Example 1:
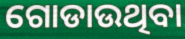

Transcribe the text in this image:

ଗୋଡାଉଥିବା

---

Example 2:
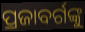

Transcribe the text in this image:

ପ୍ରଜାବର୍ଗଙ୍କୁ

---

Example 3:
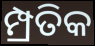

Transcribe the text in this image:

ମ୍ପ୍ରତିକ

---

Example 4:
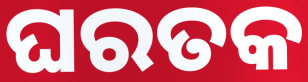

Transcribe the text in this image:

ଘରତକ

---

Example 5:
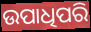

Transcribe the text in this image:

ଉପାଧିପରି